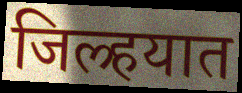
जिल्हयात